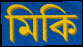
মিকি